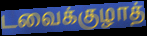
டவைக்குழாத்